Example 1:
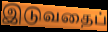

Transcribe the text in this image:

இடுவதைப்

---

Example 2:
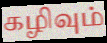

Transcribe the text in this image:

கழிவும்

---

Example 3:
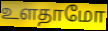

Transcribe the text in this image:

உளதாமோ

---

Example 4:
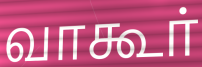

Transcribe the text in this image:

வாகூர்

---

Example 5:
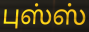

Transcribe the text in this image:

புஸ்ஸ்